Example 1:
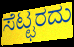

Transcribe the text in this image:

ಸೆಟ್ಟರದು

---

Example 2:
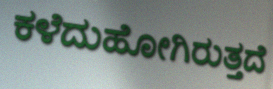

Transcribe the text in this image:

ಕಳೆದುಹೋಗಿರುತ್ತದೆ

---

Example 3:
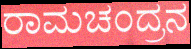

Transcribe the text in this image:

ರಾಮಚಂದ್ರನ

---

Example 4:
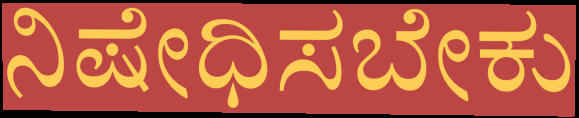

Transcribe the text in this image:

ನಿಷೇಧಿಸಬೇಕು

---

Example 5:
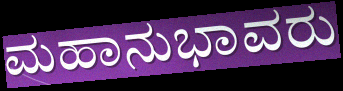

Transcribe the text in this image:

ಮಹಾನುಭಾವರು